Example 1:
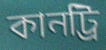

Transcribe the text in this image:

কানট্রি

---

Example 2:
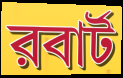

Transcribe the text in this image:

রবার্ট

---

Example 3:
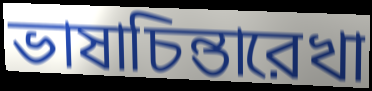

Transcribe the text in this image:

ভাষাচিন্তারেখা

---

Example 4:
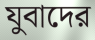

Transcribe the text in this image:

যুবাদের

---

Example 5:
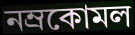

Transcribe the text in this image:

নম্রকোমল